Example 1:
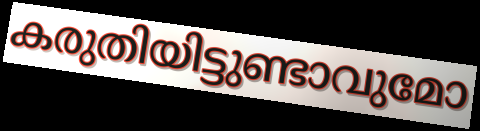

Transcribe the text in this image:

കരുതിയിട്ടുണ്ടാവുമോ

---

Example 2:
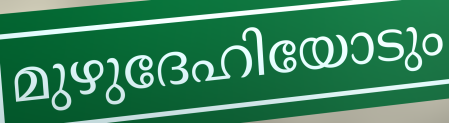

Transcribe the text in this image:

മുഴുദേഹിയോടും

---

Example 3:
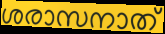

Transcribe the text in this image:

ശരാസനാത്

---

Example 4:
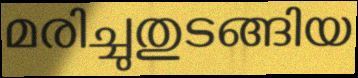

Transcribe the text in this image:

മരിച്ചുതുടങ്ങിയ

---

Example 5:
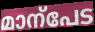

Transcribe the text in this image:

മാന്പേട